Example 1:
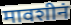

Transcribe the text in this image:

मावशीनं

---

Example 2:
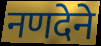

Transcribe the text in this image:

नणदेने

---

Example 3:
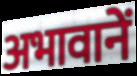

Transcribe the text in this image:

अभावानें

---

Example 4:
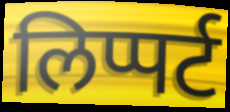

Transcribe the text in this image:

लिप्पर्ट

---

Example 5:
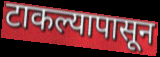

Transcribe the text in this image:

टाकल्यापासून